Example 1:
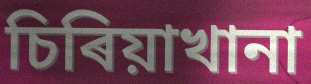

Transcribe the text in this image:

চিৰিয়াখানা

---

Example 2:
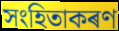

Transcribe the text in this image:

সংহিতাকৰণ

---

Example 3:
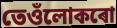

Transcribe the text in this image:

তেওঁলোকৰো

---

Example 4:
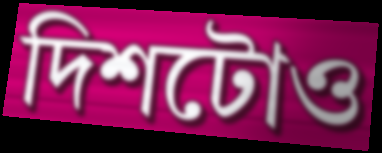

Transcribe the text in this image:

দিশটোও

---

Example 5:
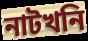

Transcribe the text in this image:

নাটখনি